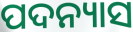
ପଦନ୍ୟାସ